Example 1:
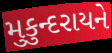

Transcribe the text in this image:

મુકુન્દરાયને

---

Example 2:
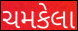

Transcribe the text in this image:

ચમકેલા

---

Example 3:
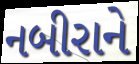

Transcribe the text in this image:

નબીરાને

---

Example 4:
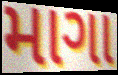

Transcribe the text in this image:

માગા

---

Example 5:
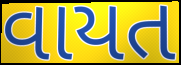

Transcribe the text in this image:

વાયત